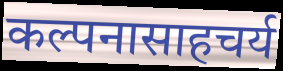
कल्पनासाहचर्य